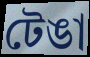
টেঙা